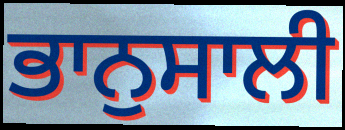
ਭਾਨੁਸਾਲੀ